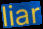
liar